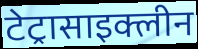
टेट्रासाइक्लीन